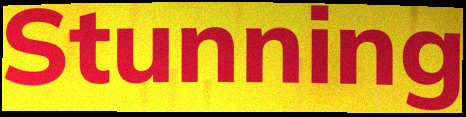
Stunning